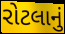
રોટલાનું